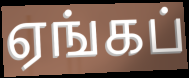
ஏங்கப்